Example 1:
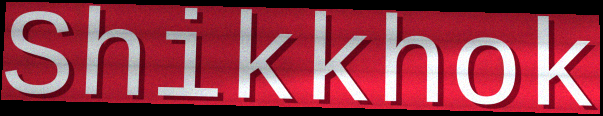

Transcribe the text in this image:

Shikkhok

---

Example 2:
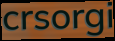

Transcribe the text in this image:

crsorgi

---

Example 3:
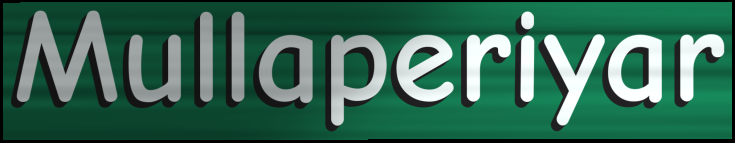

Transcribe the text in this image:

Mullaperiyar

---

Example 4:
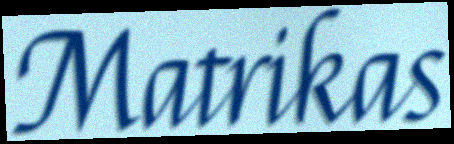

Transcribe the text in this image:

Matrikas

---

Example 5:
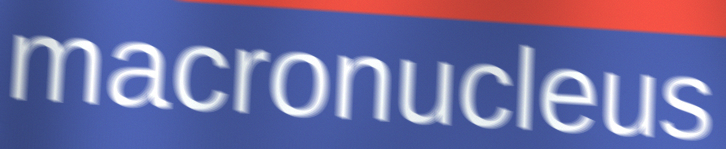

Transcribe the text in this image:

macronucleus